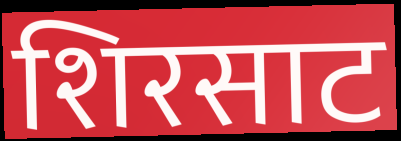
शिरसाट